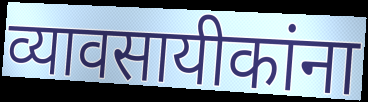
व्यावसायीकांना